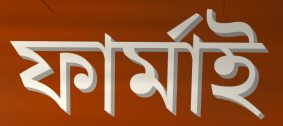
ফাৰ্মাই